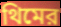
থিমের